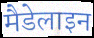
मैडेलाइन